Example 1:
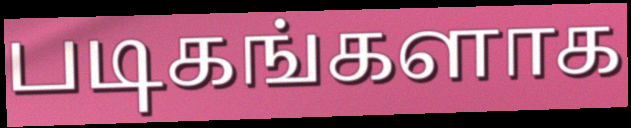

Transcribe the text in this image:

படிகங்களாக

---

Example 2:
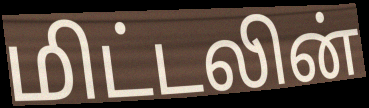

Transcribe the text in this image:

மிட்டலின்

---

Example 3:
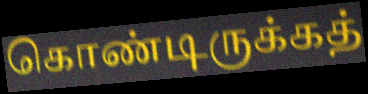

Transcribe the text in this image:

கொண்டிருக்கத்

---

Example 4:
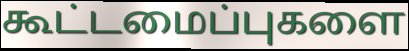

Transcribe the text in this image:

கூட்டமைப்புகளை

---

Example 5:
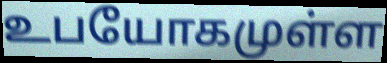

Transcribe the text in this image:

உபயோகமுள்ள